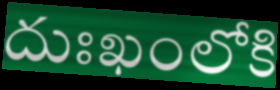
దుఃఖంలోకి